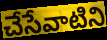
చేసేవాటిని